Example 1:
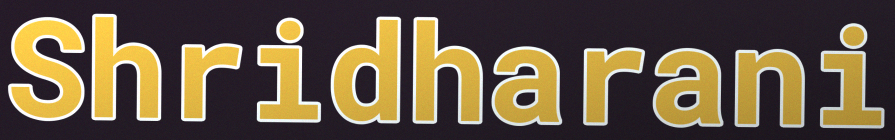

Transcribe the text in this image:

Shridharani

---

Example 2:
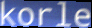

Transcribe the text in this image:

korle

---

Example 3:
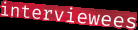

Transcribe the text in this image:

interviewees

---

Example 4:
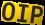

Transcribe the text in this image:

OIP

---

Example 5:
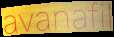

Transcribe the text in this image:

avanafil